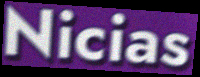
Nicias